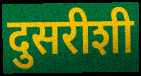
दुसरीशी